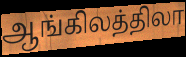
ஆங்கிலத்திலா